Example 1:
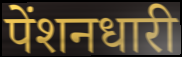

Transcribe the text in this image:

पेंशनधारी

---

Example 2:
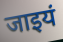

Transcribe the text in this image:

जाइयं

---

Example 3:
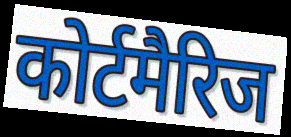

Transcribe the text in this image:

कोर्टमैरिज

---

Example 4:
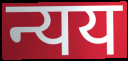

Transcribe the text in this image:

न्यय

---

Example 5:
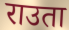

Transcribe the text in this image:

राउता